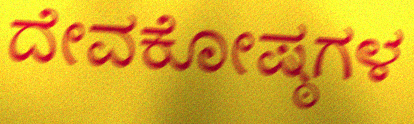
ದೇವಕೋಷ್ಠಗಳ